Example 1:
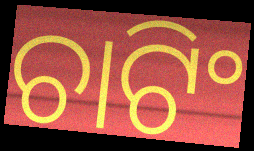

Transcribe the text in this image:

ଚାଟିଂ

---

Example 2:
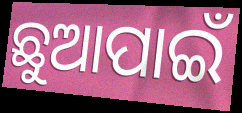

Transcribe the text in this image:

ଛୁଆପାଇଁ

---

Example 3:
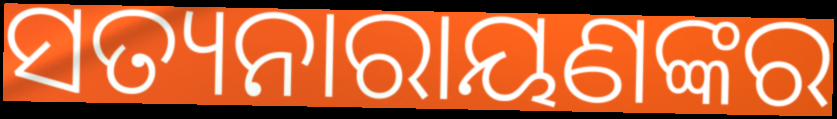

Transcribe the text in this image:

ସତ୍ୟନାରାୟଣଙ୍କର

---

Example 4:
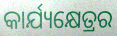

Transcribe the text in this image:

କାର୍ଯ୍ୟକ୍ଷେତ୍ରର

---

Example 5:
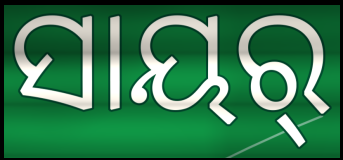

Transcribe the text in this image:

ସାୟର୍